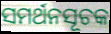
ସମର୍ଥନସୂଚକ